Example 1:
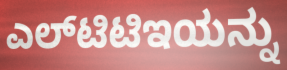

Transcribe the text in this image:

ಎಲ್‌ಟಿಟಿಇಯನ್ನು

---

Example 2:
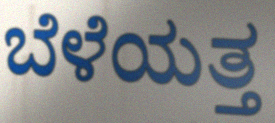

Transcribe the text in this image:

ಬೆಳೆಯತ್ತ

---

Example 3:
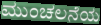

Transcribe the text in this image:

ಮುಂಚಲನೆಯ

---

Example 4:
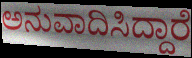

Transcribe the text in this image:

ಅನುವಾದಿಸಿದ್ದಾರೆ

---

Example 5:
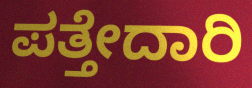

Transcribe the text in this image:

ಪತ್ತೇದಾರಿ